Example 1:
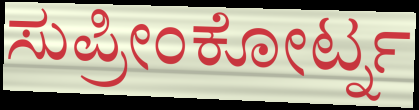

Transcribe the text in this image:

ಸುಪ್ರೀಂಕೋರ್ಟ್ನ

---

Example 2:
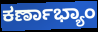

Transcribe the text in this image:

ಕರ್ಣಾಭ್ಯಾಂ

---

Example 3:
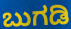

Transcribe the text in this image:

ಬುಗಡಿ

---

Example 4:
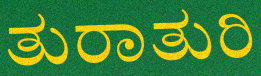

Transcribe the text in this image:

ತುರಾತುರಿ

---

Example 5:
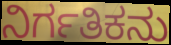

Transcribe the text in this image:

ನಿರ್ಗತಿಕನು